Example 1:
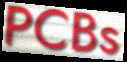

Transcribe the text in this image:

PCBs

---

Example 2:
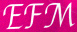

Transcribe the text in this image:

EFM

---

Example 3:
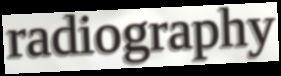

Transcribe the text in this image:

radiography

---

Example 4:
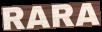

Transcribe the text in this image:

RARA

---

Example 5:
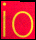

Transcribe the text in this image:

io